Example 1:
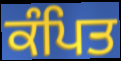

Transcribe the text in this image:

ਕੰਪਿਤ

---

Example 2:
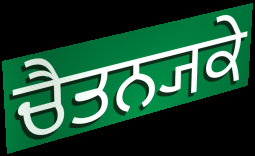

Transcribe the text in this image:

ਚੈਤਨ੍ਯਕੇ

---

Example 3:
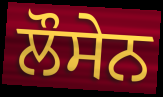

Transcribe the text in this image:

ਲੌਸੇਨ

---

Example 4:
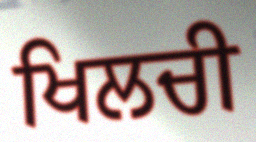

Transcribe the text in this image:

ਖਿਲਚੀ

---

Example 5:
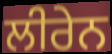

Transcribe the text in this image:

ਲੀਰੇਨ